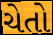
ચેતો